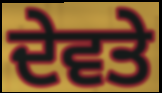
ਦੇਵਤੇ